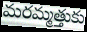
మరమ్మత్తుకు